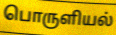
பொருளியல்